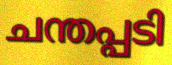
ചന്തപ്പടി